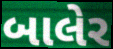
બાલેર